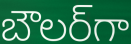
బౌలర్‌గా